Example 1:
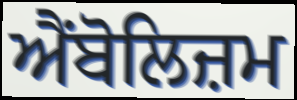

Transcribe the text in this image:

ਐਂਬੋਲਿਜ਼ਮ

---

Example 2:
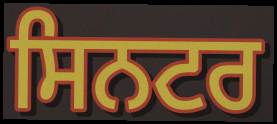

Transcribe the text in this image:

ਸਿਨਟਰ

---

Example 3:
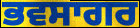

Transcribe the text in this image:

ਭਵਸਾਗਰ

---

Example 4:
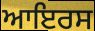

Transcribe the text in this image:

ਆਇਰਸ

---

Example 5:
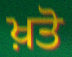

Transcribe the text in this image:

ਖ਼ਤੋ